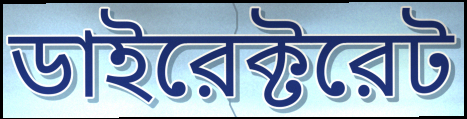
ডাইরেক্টরেট